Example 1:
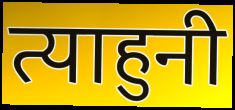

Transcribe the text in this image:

त्याहुनी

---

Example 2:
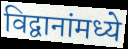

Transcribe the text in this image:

विद्वानांमध्ये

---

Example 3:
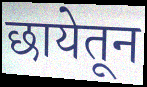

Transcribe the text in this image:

छायेतून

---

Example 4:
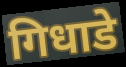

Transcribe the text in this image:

गिधाडे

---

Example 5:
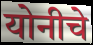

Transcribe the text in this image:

योनीचे